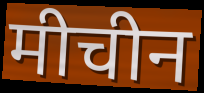
मीचीन